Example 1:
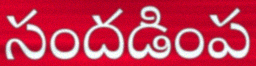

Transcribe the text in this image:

సందడింప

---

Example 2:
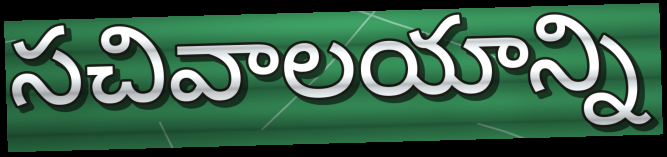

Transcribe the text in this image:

సచివాలయాన్ని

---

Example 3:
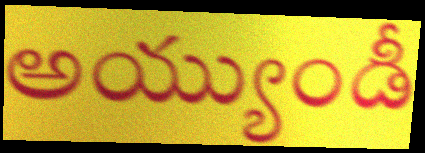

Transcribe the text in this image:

అయ్యుండీ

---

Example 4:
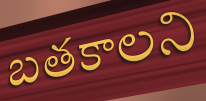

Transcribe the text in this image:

బతకాలని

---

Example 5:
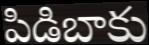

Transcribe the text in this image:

పిడిబాకు